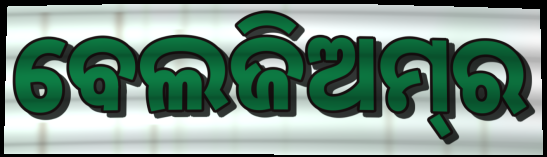
ବେଲଜିଅମ୍‌ର